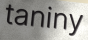
taniny